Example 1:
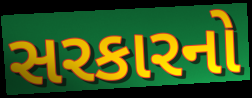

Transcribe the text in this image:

સરકારનો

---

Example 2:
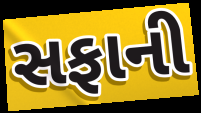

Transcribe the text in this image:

સફાની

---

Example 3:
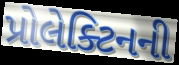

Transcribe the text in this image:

પ્રોલેક્ટિનની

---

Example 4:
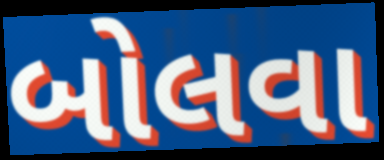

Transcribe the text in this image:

બોલવા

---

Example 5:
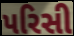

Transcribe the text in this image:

પરિસી